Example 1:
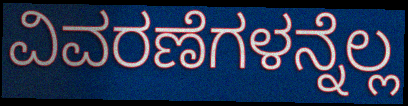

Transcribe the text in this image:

ವಿವರಣೆಗಳನ್ನೆಲ್ಲ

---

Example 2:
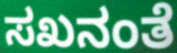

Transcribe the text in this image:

ಸಖನಂತೆ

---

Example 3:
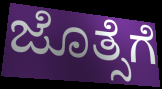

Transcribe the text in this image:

ಜೊತ್ಸೆಗೆ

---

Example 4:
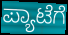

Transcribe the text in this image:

ಪ್ಯಾಟೆಗೆ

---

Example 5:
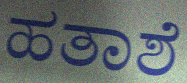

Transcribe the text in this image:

ಹತಾಶೆ